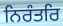
ਨਿਰੰਤਰਿ